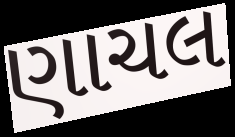
ણાચલ